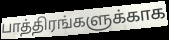
பாத்திரங்களுக்காக